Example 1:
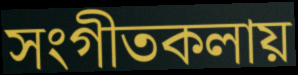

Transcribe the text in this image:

সংগীতকলায়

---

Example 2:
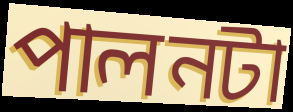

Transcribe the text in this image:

পালনটা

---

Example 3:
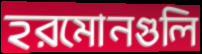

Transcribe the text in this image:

হরমোনগুলি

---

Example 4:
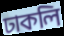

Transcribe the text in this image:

ঢাকলি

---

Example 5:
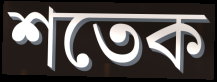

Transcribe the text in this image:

শতেক